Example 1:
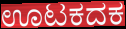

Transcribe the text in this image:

ಊಟಕದಕ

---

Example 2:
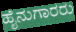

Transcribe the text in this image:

ಹೈನುಗಾರರು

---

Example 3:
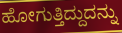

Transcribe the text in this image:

ಹೋಗುತ್ತಿದ್ದುದನ್ನು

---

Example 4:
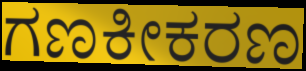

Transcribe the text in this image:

ಗಣಕೀಕರಣ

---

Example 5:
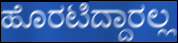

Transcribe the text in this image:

ಹೊರಟಿದ್ದಾರಲ್ಲ